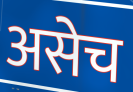
असेच